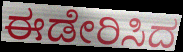
ಈಡೇರಿಸಿದ